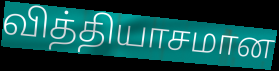
வித்தியாசமான